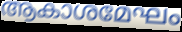
ആകാശമേഘം